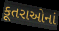
કૂતરાઓનાં